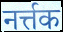
नर्त्तक